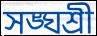
সঙ্ঘশ্রী